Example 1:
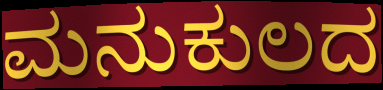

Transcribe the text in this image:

ಮನುಕುಲದ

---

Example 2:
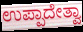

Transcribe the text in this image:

ಉಪ್ಪಾದೇತ್ವಾ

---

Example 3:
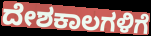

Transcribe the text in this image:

ದೇಶಕಾಲಗಳಿಗೆ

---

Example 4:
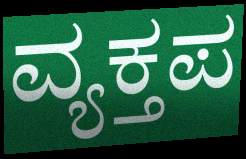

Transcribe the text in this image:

ವ್ಯಕ್ತಪ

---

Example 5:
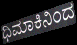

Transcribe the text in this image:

ಧಿಮಾಕಿನಿಂದ